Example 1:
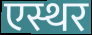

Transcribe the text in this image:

एस्थर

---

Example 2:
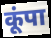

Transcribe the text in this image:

कूंपा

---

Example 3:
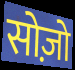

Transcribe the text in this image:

सोज़ो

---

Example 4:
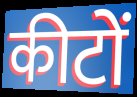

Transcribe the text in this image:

कीटों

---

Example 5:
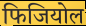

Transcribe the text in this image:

फिजियोल